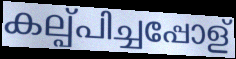
കല്പ്പിച്ചപ്പോള്